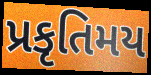
પ્રકૃતિમય